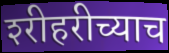
श्रीहरीच्याच